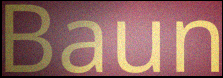
Baun